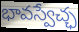
భావస్వేచ్ఛ